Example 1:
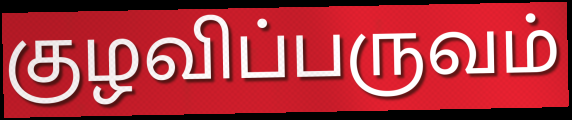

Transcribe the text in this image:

குழவிப்பருவம்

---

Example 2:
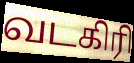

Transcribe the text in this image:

வடகிரி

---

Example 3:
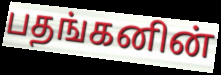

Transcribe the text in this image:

பதங்கனின்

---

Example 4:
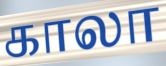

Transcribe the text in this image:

காலா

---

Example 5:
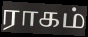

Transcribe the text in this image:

ராகம்